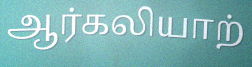
ஆர்கலியாற்